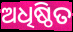
ଅଧିଷ୍ଠିତ